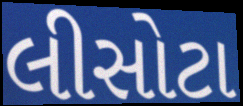
લીસોટા